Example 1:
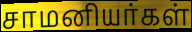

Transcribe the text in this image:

சாமனியர்கள்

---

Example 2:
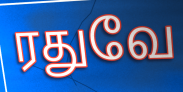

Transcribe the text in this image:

ரதுவே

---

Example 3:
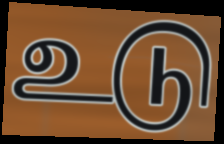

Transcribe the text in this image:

உடு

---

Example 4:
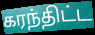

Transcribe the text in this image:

கரந்திட்ட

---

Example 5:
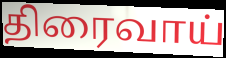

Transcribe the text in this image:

திரைவாய்